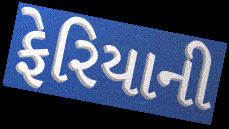
ફેરિયાની